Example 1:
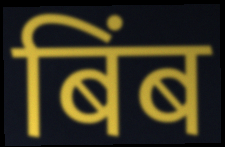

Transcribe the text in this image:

बिंब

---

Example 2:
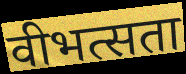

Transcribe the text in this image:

वीभत्सता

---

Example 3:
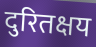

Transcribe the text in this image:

दुरितक्षय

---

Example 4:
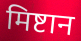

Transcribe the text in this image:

मिष्टान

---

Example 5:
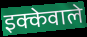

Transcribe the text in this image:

इक्केवाले